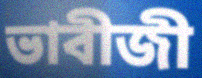
ভাবীজী